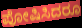
ಪೋಷಿಸಿದರೂ